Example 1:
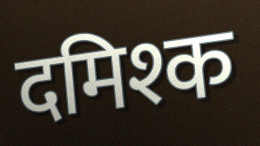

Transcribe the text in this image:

दमिश्क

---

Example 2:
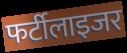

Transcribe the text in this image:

फर्टीलाइजर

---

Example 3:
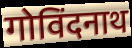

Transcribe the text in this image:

गोविंदनाथ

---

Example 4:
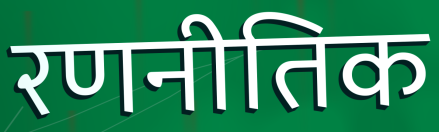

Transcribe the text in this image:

रणनीतिक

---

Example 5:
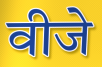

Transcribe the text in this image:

वीजे